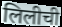
लिलीची